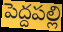
పెద్దపల్లి